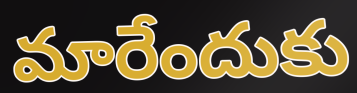
మారేందుకు